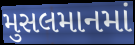
મુસલમાનમાં